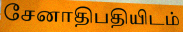
சேனாதிபதியிடம்